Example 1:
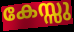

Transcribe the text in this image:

കേസ്സു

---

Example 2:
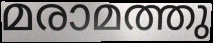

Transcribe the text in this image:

മരാമത്തു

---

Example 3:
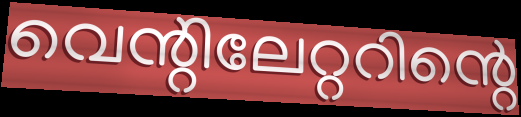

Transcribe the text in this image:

വെന്റിലേറ്ററിന്റെ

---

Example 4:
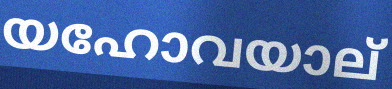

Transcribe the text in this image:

യഹോവയാല്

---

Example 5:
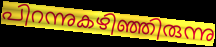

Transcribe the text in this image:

പിറന്നുകഴിഞ്ഞിരുന്നു